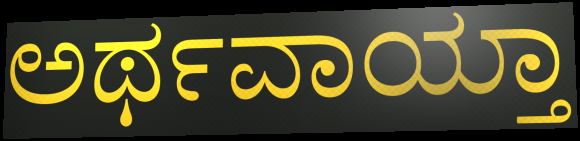
ಅರ್ಥವಾಯ್ತಾ